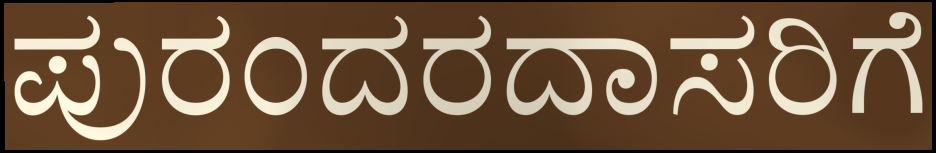
ಪುರಂದರದಾಸರಿಗೆ